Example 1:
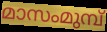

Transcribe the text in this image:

മാസംമുമ്പ്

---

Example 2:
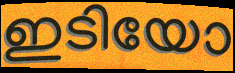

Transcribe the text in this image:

ഇടിയോ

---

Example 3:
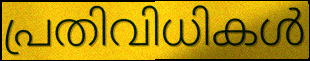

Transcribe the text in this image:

പ്രതിവിധികൾ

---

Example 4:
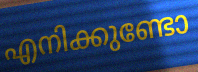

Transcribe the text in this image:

എനിക്കുണ്ടോ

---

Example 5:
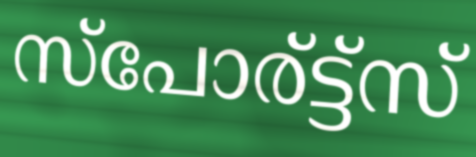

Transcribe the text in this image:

സ്പോര്ട്ട്സ്